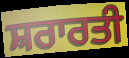
ਸ਼ਰਾਰਤੀ